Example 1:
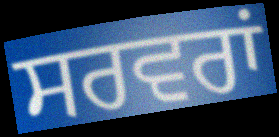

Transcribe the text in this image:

ਸਰਵਰਾਂ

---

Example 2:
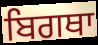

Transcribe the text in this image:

ਬਿਗਥਾ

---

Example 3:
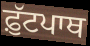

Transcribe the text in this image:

ਫ਼ੁੱਟਪਾਥ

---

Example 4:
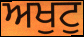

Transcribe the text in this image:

ਅਖੁਟੁ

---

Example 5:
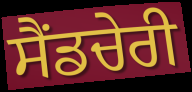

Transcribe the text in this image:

ਸੈਂਡਚੇਰੀ